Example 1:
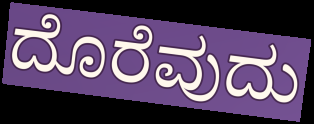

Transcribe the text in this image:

ದೊರೆವುದು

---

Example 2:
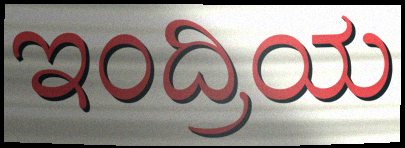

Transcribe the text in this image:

ಇಂದ್ರಿಯ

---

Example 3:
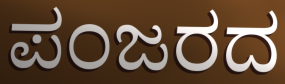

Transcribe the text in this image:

ಪಂಜರದ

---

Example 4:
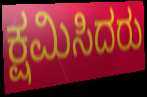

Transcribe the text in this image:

ಕ್ಷಮಿಸಿದರು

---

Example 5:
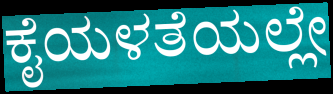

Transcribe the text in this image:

ಕೈಯಳತೆಯಲ್ಲೇ